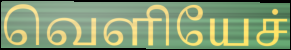
வெளியேச்